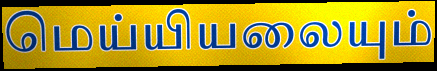
மெய்யியலையும்